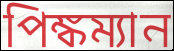
পিঙ্কম্যান